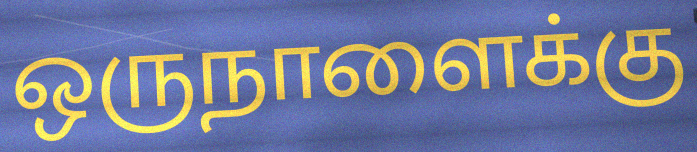
ஒருநாளைக்கு